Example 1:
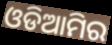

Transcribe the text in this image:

ଓଡିଆମିର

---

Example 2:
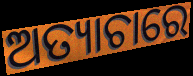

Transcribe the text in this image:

ଅତ୍ୟାଚାରେ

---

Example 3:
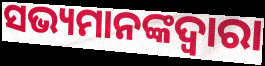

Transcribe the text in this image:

ସଭ୍ୟମାନଙ୍କଦ୍ୱାରା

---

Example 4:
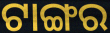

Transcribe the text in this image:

ଟାଙ୍ଗର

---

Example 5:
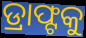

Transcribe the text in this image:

ଡ୍ରାଫ୍ଟକୁ